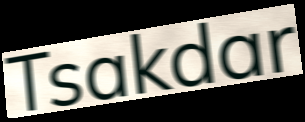
Tsakdar